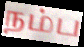
நம்ப